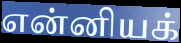
என்னியக்